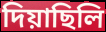
দিয়াছিলি